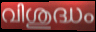
വിശുദ്ധം